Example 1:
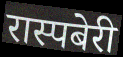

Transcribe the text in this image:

रास्पबेरी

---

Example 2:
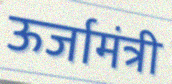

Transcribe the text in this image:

ऊर्जामंत्री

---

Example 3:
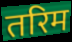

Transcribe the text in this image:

तरिम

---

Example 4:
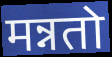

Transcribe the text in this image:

मन्नतो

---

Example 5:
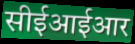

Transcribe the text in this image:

सीईआईआर